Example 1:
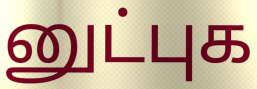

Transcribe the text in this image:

னுட்புக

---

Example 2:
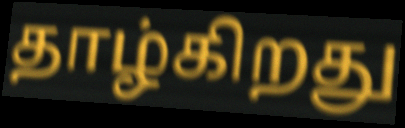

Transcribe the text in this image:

தாழ்கிறது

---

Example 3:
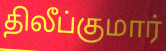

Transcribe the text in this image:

திலீப்குமார்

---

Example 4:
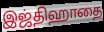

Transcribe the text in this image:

இஜ்திஹாதை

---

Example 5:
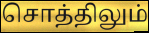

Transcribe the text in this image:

சொத்திலும்